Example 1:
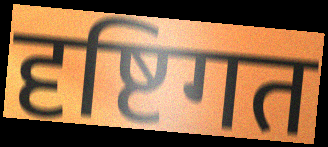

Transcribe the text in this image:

दृष्टिगत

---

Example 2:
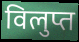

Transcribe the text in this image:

विलुप्त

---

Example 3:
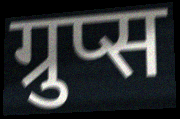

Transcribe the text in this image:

ग्रुप्स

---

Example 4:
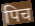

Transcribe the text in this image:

पिच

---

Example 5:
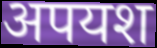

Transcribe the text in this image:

अपयश